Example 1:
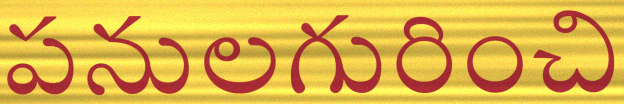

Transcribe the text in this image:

పనులగురించి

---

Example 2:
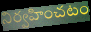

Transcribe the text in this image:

నిర్వహించటం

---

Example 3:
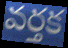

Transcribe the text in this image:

వర్తక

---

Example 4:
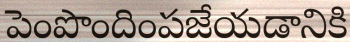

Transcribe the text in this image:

పెంపొందింపజేయడానికి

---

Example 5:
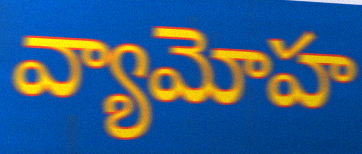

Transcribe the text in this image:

వ్యామోహ